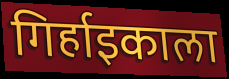
गिर्हाइकाला